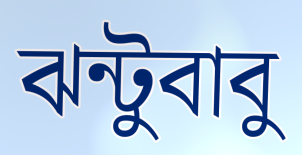
ঝন্টুবাবু